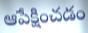
ఆపేక్షించడం